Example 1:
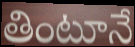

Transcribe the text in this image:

తింటూనే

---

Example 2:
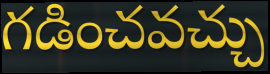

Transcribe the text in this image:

గడించవచ్చు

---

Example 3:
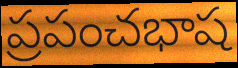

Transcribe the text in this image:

ప్రపంచభాష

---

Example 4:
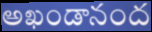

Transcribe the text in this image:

అఖండానంద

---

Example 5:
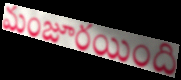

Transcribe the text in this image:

మంజూరయింది